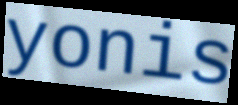
yonis